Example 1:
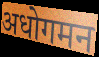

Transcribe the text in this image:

अधोगमन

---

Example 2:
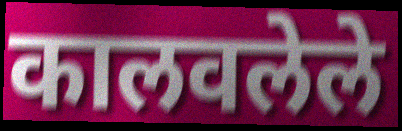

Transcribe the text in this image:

कालवलेले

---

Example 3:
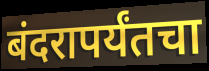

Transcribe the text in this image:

बंदरापर्यंतचा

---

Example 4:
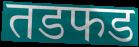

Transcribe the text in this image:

तडफड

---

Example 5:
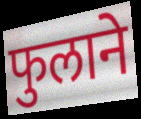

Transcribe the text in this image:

फुलाने